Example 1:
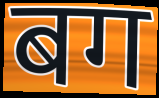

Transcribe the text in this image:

बग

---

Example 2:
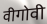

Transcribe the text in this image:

वीगोवी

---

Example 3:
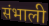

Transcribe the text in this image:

संभाली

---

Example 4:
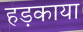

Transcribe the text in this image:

हड़काया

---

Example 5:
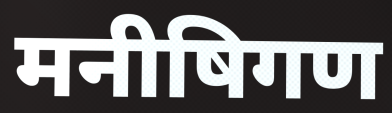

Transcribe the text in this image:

मनीषिगण